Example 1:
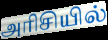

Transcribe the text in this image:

அரிசியில்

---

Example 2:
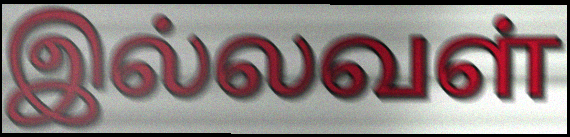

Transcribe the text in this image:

இல்லவள்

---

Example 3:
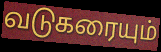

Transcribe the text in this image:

வடுகரையும்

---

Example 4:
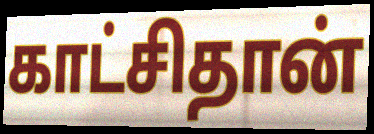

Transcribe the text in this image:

காட்சிதான்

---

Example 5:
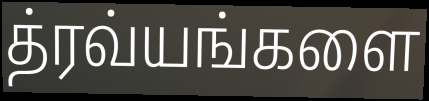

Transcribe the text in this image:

த்ரவ்யங்களை